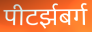
पीटर्झबर्ग